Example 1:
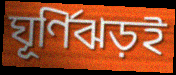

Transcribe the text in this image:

ঘূর্ণিঝড়ই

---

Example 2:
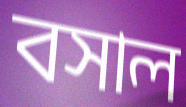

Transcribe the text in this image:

বসাল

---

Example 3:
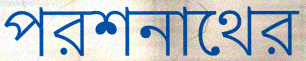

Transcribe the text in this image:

পরশনাথের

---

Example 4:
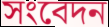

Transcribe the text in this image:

সংবেদন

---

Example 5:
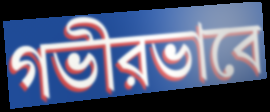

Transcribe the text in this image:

গভীরভাবে